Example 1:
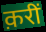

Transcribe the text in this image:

क़रीं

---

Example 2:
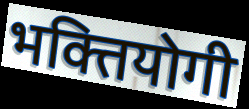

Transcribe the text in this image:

भक्तियोगी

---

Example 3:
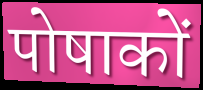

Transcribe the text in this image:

पोषाकों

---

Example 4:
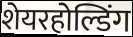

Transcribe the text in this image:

शेयरहोल्डिंग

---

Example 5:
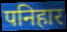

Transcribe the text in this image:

पनिहार